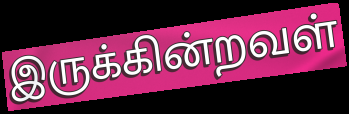
இருக்கின்றவள்